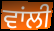
ਵਾਂਲੀ